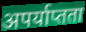
अपर्याप्‍तता